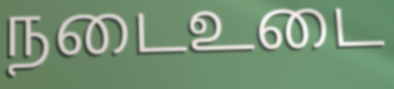
நடைஉடை